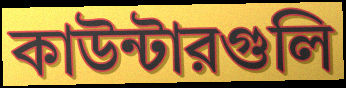
কাউন্টারগুলি